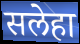
सलेहा